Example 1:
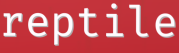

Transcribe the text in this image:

reptile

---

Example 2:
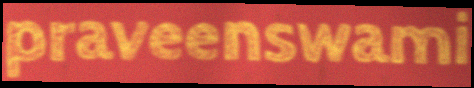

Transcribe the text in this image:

praveenswami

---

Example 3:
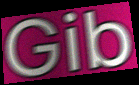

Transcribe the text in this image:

Gib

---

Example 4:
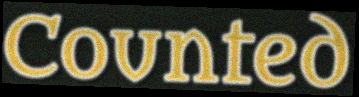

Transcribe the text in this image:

Counted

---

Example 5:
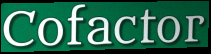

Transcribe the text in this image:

Cofactor